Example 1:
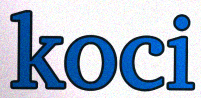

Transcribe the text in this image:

koci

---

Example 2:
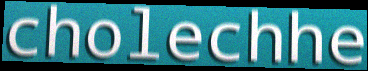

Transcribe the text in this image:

cholechhe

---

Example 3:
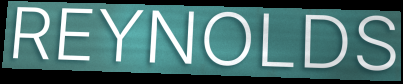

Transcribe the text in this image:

REYNOLDS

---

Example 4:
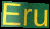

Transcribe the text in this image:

Eru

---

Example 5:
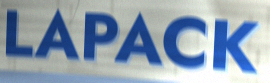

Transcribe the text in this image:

LAPACK